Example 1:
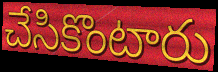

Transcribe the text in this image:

చేసికొంటారు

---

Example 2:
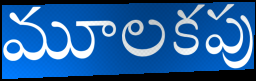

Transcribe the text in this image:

మూలకపు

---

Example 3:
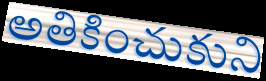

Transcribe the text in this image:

అతికించుకుని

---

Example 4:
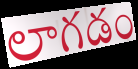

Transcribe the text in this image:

లాగడం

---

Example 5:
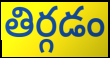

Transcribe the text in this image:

తిర్గడం